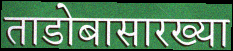
ताडोबासारख्या